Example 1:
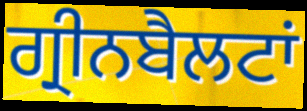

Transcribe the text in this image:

ਗ੍ਰੀਨਬੈਲਟਾਂ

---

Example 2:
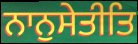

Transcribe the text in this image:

ਨਾਨੁਸੇਤੀਤਿ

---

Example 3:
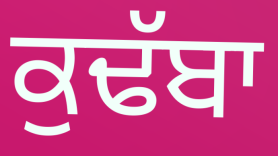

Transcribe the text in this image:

ਕੁਢੱਬਾ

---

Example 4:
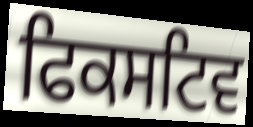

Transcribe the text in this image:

ਫਿਕਸਟਿਵ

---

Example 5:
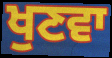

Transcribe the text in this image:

ਖੁਣਵਾ